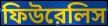
ফিউরেলিস